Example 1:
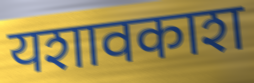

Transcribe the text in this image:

यशावकाश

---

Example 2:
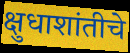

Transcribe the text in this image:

क्षुधाशांतीचे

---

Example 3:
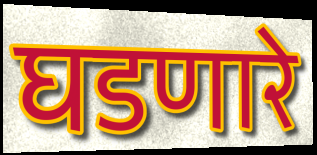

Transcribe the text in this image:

घडणारे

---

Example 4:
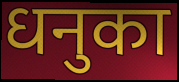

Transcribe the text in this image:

धनुका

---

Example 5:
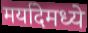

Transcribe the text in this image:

मर्यादेमध्ये